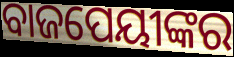
ବାଜପେୟୀଙ୍କର